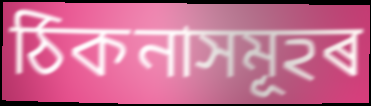
ঠিকনাসমূহৰ